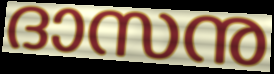
ദാസനു